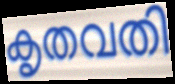
കൃതവതി